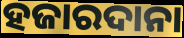
ହଜାରଦାନା